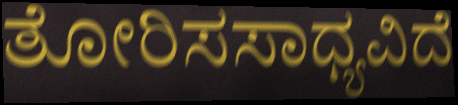
ತೋರಿಸಸಾಧ್ಯವಿದೆ